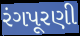
રંગપૂરણી